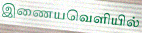
இணையவெளியில்